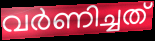
വർണിച്ചത്